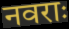
नवराः